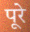
पूरे